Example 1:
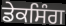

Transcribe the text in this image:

ਡੇਕਸਿੰਗ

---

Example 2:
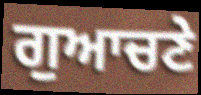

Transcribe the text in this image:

ਗੁਆਚਣੇ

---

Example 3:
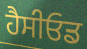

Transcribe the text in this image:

ਹੈਸੀਓਡ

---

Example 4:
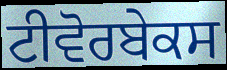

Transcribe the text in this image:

ਟੀਵੋਰਬੇਕਸ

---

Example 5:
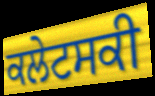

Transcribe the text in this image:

ਕਲੇਟਸਕੀ